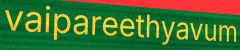
vaipareethyavum